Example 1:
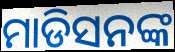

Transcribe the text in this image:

ମାଡିସନଙ୍କ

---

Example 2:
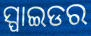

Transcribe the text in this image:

ସ୍ପାଇଡର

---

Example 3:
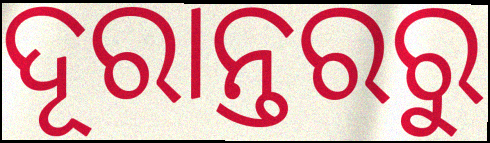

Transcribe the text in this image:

ଦୂରାନ୍ତରରୁ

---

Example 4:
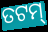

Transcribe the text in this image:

ତଟମ୍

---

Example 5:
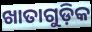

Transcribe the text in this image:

ଖାତାଗୁଡ଼ିକ